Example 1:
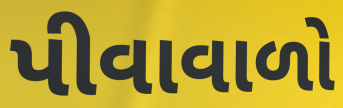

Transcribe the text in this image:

પીવાવાળો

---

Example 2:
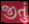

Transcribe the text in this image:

જીતું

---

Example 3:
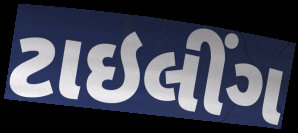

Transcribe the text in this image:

ટાઇલીંગ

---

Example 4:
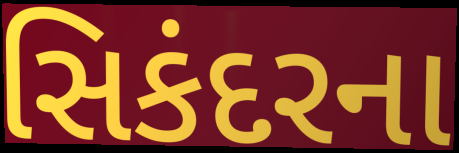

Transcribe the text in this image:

સિકંદરના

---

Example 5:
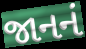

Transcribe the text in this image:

જાનનં